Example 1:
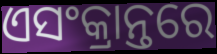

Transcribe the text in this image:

ଏସଂକ୍ରାନ୍ତରେ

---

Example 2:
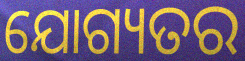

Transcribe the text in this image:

ଯୋଗ୍ୟତର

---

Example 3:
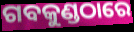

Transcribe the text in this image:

ଗବକୁଣ୍ଡଠାରେ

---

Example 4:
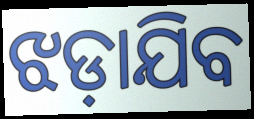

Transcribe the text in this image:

ଝଡ଼ାଯିବ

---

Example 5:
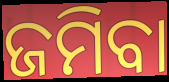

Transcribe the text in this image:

ଜମିବା